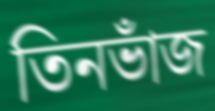
তিনভাঁজ